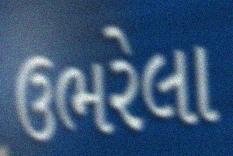
ઉભરેલા